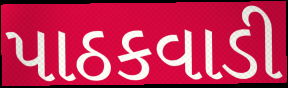
પાઠકવાડી